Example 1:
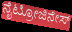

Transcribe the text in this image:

ನೈಟ್ರೋಜಿನೇಸ್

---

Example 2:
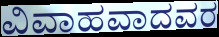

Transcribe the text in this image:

ವಿವಾಹವಾದವರ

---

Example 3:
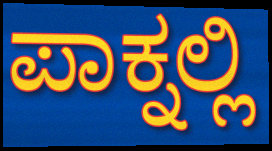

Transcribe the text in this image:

ಪಾಕ್ನಲ್ಲಿ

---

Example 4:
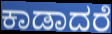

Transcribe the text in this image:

ಕಾಡಾದರೆ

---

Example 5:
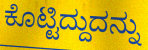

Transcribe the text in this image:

ಕೊಟ್ಟಿದ್ದುದನ್ನು